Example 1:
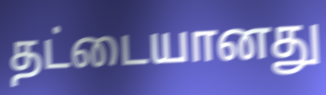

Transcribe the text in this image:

தட்டையானது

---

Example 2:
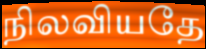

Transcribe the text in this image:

நிலவியதே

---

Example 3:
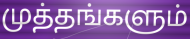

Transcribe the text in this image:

முத்தங்களும்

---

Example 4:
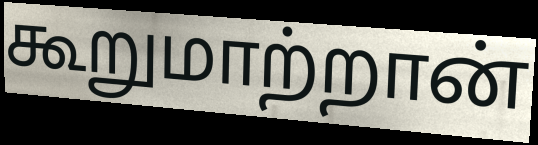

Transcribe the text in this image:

கூறுமாற்றான்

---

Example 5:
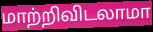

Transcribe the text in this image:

மாற்றிவிடலாமா